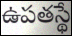
ఉపతస్థే